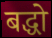
बद्धो